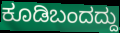
ಕೂಡಿಬಂದದ್ದು